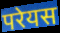
परेयस